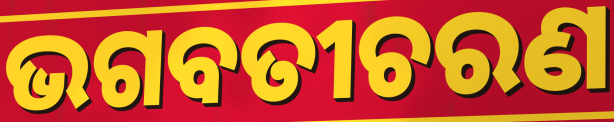
ଭଗବତୀଚରଣ